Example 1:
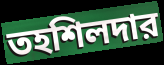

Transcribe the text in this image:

তহশিলদার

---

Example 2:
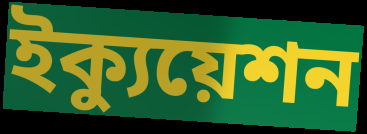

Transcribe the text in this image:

ইক্যুয়েশন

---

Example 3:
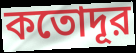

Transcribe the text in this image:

কতোদূর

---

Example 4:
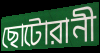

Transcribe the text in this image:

ছোটোরানী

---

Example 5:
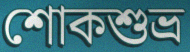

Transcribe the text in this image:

শোকশুভ্র